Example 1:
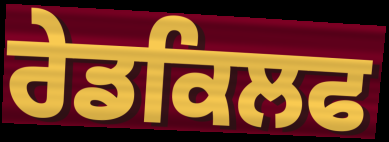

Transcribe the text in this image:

ਰੇਡਕਿਲਫ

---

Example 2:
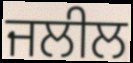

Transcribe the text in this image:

ਜਲੀਲ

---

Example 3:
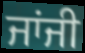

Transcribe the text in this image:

ਜਾਂਜੀ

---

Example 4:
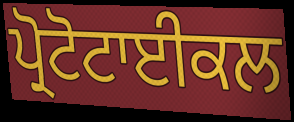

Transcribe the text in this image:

ਪ੍ਰੋਟੋਟਾਈਕਲ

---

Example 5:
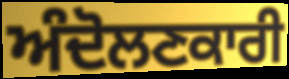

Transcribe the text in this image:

ਅੰਦੋਲਣਕਾਰੀ